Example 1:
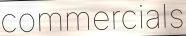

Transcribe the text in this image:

commercials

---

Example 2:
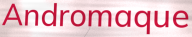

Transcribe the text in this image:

Andromaque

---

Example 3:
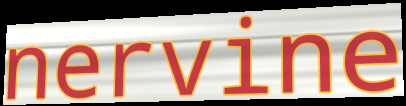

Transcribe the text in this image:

nervine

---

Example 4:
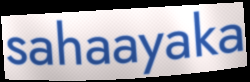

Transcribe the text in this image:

sahaayaka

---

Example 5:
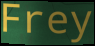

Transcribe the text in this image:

Frey